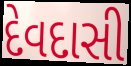
દેવદાસી